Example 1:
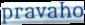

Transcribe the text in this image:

pravaho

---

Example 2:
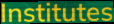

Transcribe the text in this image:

Institutes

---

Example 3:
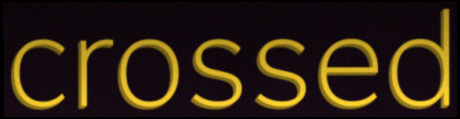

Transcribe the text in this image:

crossed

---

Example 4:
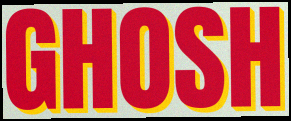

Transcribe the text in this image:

GHOSH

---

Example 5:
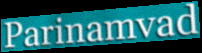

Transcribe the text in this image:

Parinamvad